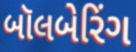
બૉલબેરિંગ